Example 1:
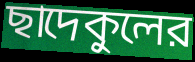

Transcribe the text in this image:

ছাদেকুলের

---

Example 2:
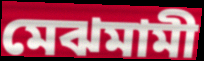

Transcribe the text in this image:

মেঝমামী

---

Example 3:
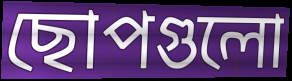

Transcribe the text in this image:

ছোপগুলো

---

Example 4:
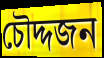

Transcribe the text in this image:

চৌদ্দজন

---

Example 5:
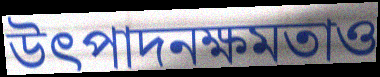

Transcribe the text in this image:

উৎপাদনক্ষমতাও